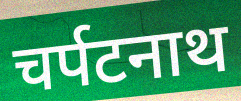
चर्पटनाथ